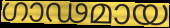
ഗാഢമായ